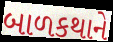
બાળકથાને